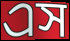
এস